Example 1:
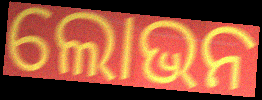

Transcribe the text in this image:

ଲୋଭନ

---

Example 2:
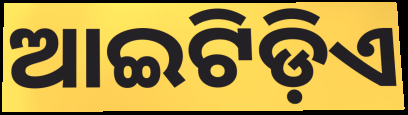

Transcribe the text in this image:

ଆଇଟିଡ଼ିଏ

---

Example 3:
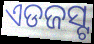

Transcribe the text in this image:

ଏଡଜସ୍ଟ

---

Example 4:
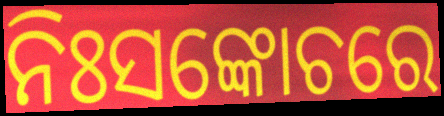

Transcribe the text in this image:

ନିଃସଙ୍କୋଚରେ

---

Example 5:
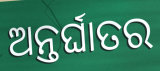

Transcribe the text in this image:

ଅନ୍ତର୍ଘାତର